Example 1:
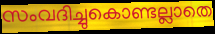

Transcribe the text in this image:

സംവദിച്ചുകൊണ്ടല്ലാതെ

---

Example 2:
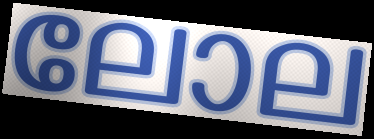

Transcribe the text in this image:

ലോല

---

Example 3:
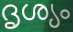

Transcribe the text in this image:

ദൃശ്യം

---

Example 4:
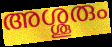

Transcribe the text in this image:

അശ്ശൂരും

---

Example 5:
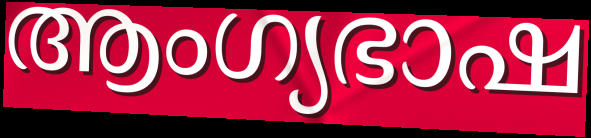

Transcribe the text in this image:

ആംഗ്യഭാഷ